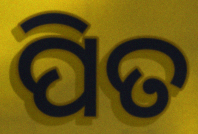
ପିତ